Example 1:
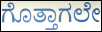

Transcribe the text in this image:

ಗೊತ್ತಾಗಲೇ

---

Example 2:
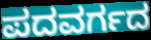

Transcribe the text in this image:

ಪದವರ್ಗದ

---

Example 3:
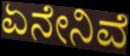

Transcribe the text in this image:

ಏನೇನಿವೆ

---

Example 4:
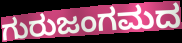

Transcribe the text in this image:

ಗುರುಜಂಗಮದ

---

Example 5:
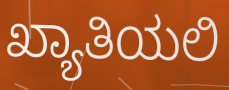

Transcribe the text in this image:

ಖ್ಯಾತಿಯಲಿ